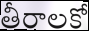
తీరాలకో